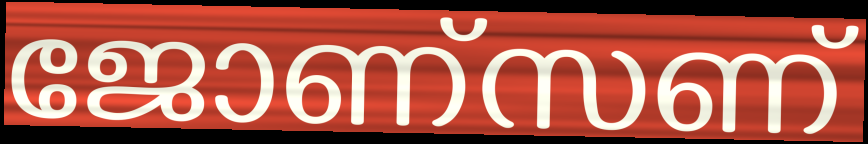
ജോണ്സണ്